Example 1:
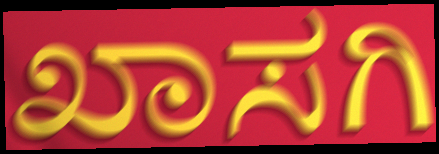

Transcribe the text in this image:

ಖಾಸಗಿ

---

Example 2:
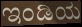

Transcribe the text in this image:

ಇಂಡಿಯ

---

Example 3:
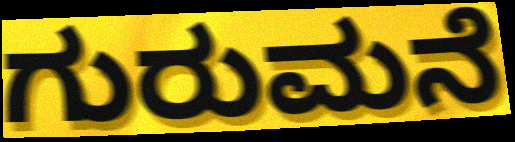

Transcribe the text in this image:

ಗುರುಮನೆ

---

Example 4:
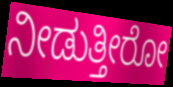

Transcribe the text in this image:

ನೀಡುತ್ತೀರೋ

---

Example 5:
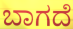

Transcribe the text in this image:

ಬಾಗದೆ